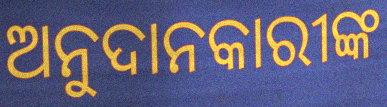
ଅନୁଦାନକାରୀଙ୍କ